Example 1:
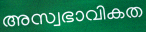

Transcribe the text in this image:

അസ്വഭാവികത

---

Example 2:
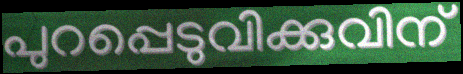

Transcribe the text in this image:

പുറപ്പെടുവിക്കുവിന്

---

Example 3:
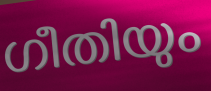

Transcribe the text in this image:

ഗീതിയും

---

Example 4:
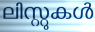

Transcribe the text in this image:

ലിസ്റ്റുകൾ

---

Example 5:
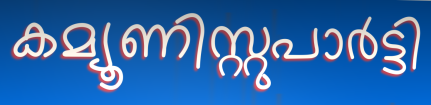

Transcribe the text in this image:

കമ്യൂണിസ്റ്റുപാർട്ടി